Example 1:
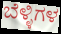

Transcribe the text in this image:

ಬೆಳ್ಳಿಗಳ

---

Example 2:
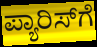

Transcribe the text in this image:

ಪ್ಯಾರಿಸ್‍ಗೆ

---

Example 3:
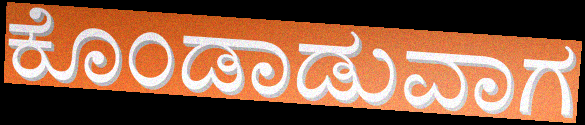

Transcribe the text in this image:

ಕೊಂಡಾಡುವಾಗ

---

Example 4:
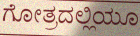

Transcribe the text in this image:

ಗೋತ್ರದಲ್ಲಿಯೂ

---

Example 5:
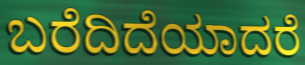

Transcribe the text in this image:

ಬರೆದಿದೆಯಾದರೆ